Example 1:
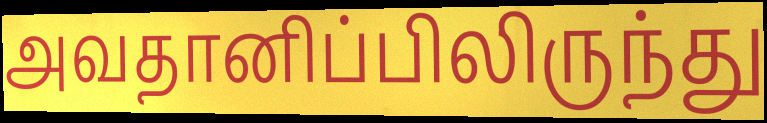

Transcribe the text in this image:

அவதானிப்பிலிருந்து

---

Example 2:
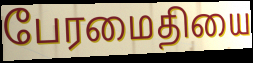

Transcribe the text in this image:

பேரமைதியை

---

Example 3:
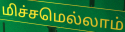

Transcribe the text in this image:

மிச்சமெல்லாம்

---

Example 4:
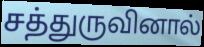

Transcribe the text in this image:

சத்துருவினால்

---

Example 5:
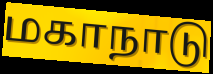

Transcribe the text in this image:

மகாநாடு